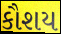
કૌશય